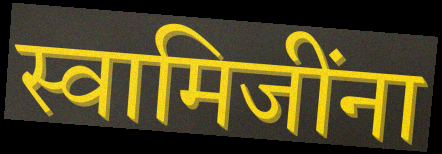
स्वामिजींना